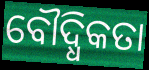
ବୌଦ୍ଧିକତା